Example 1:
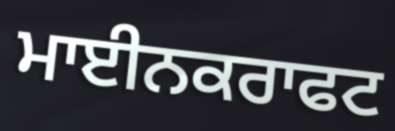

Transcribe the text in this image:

ਮਾਈਨਕਰਾਫਟ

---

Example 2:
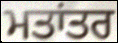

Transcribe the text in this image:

ਮਤਾਂਤਰ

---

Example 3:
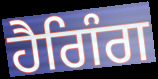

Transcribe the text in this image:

ਹੈਗਿੰਗ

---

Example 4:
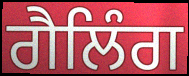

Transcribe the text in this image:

ਗੈਲਿੰਗ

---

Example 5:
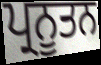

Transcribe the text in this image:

ਪ੍ਰਨੂਤਨ